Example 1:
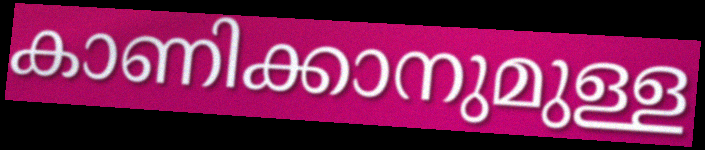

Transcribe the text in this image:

കാണിക്കാനുമുള്ള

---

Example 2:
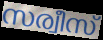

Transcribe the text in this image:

സര്വീസ്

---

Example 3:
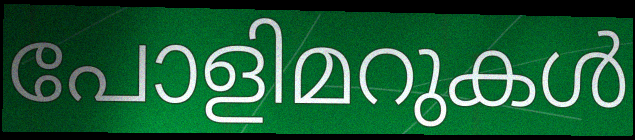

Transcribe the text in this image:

പോളിമറുകൾ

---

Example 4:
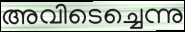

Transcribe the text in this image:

അവിടെച്ചെന്നു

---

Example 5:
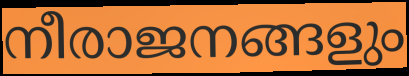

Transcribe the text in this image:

നീരാജനങ്ങളും